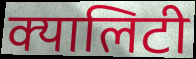
क्यालिटी